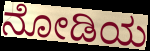
ನೋಡಿಯ